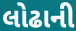
લોઢાની